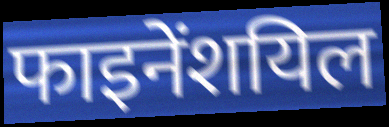
फाइनेंशयिल